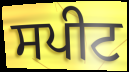
ਸਪੀਟ